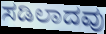
ಸಡಿಲಾದವು